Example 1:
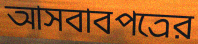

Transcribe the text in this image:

আসবাবপত্রের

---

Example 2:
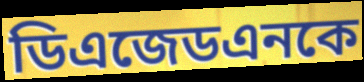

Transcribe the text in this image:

ডিএজেডএনকে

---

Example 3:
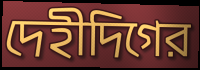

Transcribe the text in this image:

দেহীদিগের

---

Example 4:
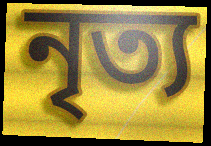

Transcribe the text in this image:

নৃত্য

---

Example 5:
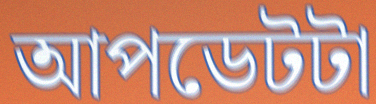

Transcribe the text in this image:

আপডেটটা